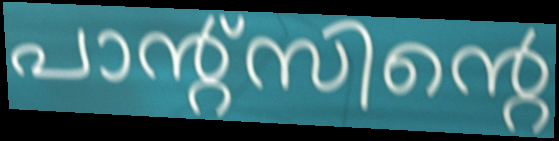
പാന്റ്സിന്റെ